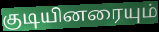
குடியினரையும்